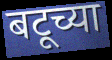
बटूच्या